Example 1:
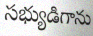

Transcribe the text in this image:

సభ్యుడిగాను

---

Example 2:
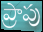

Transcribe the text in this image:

ప్రాపు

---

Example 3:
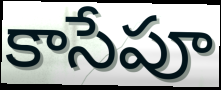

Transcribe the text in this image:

కాసేపూ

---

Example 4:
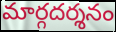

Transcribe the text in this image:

మార్గదర్శనం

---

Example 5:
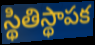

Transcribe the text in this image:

స్థితిస్థాపక